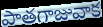
పాతగాజువాక